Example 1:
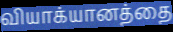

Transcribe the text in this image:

வியாக்யானத்தை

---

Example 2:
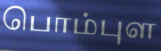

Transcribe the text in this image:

பொம்புள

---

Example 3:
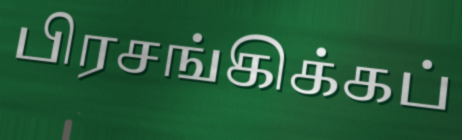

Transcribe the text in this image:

பிரசங்கிக்கப்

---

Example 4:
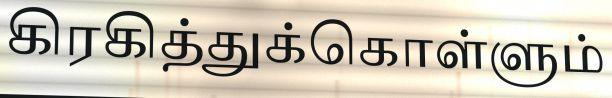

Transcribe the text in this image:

கிரகித்துக்கொள்ளும்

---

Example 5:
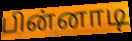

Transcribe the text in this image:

பின்னாடி